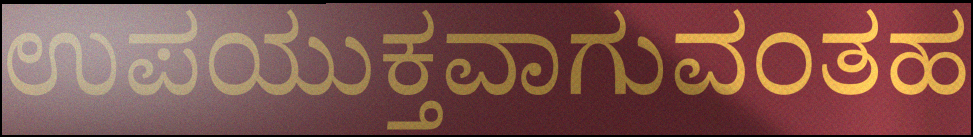
ಉಪಯುಕ್ತವಾಗುವಂತಹ